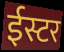
ईस्टर